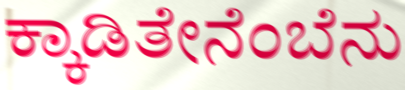
ಕ್ಕಾಡಿತೇನೆಂಬೆನು